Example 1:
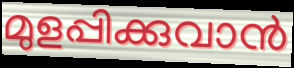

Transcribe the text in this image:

മുളപ്പിക്കുവാൻ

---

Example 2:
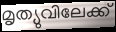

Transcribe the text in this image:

മൃത്യുവിലേക്ക്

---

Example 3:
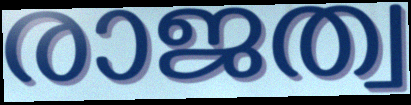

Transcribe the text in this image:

രാജത്വ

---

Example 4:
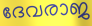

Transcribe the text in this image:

ദേവരാജ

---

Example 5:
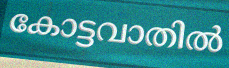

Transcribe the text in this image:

കോട്ടവാതിൽ